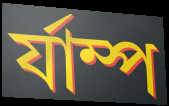
র্যাম্প